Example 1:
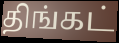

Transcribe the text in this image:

திங்கட்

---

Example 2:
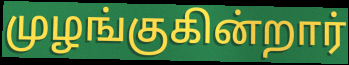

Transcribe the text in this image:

முழங்குகின்றார்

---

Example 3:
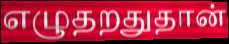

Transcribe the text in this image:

எழுதறதுதான்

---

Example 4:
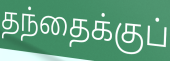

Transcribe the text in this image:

தந்தைக்குப்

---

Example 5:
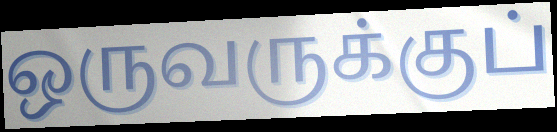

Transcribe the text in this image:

ஒருவருக்குப்